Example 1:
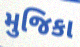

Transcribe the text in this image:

મુજિકા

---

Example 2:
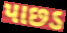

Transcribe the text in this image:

પાછડ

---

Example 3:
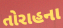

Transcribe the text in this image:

તોરાહના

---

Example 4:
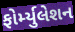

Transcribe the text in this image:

ફોર્મ્યુલેશન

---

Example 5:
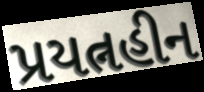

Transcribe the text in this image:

પ્રયત્નહીન